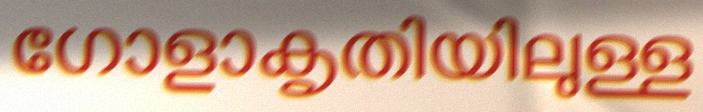
ഗോളാകൃതിയിലുള്ള